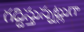
గద్దిస్తున్నట్లుగా